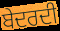
ਬੇਦਰਦੀ